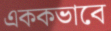
এককভাবে